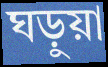
ঘড়ুয়া